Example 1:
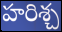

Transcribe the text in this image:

హరిశ్చ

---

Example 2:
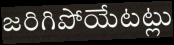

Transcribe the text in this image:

జరిగిపోయేటట్లు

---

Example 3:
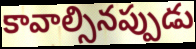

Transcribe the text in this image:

కావాల్సినప్పుడు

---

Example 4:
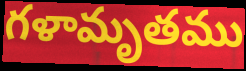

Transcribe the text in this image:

గళామృతము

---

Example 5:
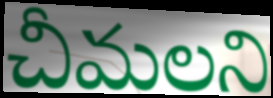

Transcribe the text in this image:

చీమలని